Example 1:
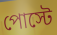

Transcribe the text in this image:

পোস্টে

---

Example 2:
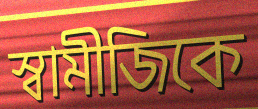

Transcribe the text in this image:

স্বামীজিকে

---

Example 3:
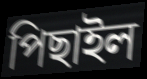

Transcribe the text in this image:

পিছাইল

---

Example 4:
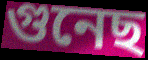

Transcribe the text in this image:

গুনেছ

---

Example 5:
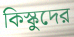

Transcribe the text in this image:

কিস্কুদের